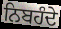
ਨਿਬਹੰਦੇ